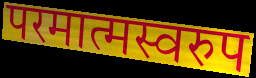
परमात्मस्वरुप